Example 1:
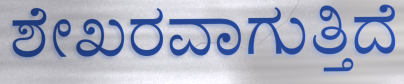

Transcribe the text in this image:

ಶೇಖರವಾಗುತ್ತಿದೆ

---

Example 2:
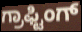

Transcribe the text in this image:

ಗ್ರಾಫ್ಟಿಂಗ್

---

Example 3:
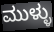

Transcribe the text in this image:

ಮುಳ್ಳು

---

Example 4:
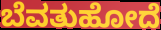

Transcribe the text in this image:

ಬೆವತುಹೋದೆ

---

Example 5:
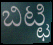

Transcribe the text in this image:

ಬಿಟ್ಟಿ